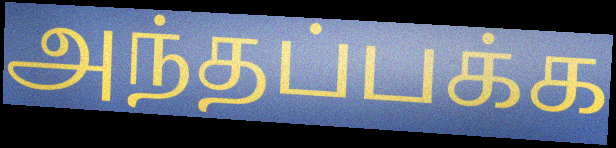
அந்தப்பக்க